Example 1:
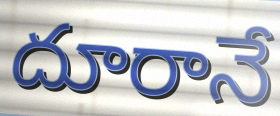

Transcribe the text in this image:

దూరానే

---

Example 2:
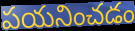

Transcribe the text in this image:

పయనించడం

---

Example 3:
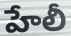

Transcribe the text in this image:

హేలీ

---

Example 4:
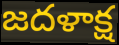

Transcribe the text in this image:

జదళాక్ష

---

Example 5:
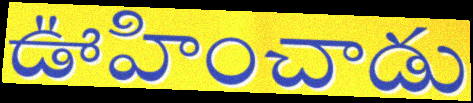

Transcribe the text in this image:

ఊహించాడు